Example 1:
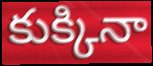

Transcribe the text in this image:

కుక్కినా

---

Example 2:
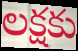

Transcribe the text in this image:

లక్షకు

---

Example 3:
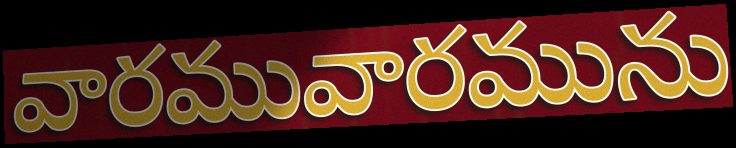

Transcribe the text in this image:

వారమువారమును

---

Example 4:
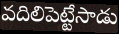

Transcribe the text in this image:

వదిలిపెట్టేసాడు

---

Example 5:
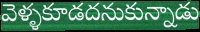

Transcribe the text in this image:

వెళ్ళకూడదనుకున్నాడు